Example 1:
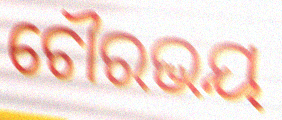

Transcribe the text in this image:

ଚୌରଭୟ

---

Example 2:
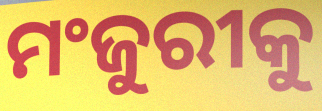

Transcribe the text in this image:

ମଂଜୁରୀକୁ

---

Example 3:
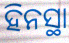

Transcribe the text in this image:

ହିନସ୍ଥା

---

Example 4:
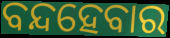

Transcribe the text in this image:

ବନ୍ଦହେବାର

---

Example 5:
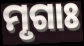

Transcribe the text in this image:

ମୃଗାଃ